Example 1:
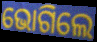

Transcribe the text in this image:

ଭୋଗିଲେ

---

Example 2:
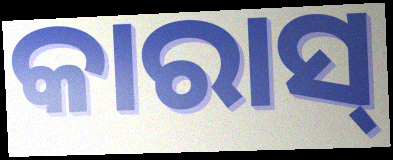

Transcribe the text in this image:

କାରାସ୍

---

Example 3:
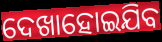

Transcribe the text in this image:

ଦେଖାହୋଇଯିବ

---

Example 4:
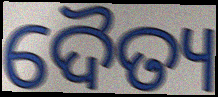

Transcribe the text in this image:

ଦୈତ୍ୟ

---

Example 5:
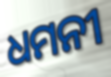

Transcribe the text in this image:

ଧମନୀ